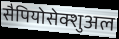
सैपियोसेक्शुअल